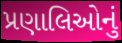
પ્રણાલિઓનું